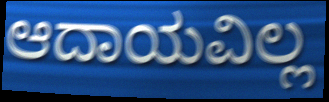
ಆದಾಯವಿಲ್ಲ